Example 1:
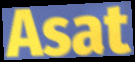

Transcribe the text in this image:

Asat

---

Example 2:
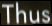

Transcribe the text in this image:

Thus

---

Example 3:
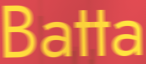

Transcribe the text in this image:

Batta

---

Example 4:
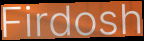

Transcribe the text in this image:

Firdosh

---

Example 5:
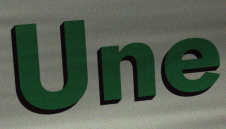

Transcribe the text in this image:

Une